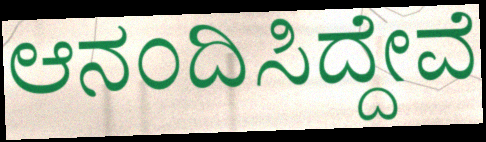
ಆನಂದಿಸಿದ್ದೇವೆ